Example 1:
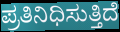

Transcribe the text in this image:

ಪ್ರತಿನಿಧಿಸುತ್ತಿದೆ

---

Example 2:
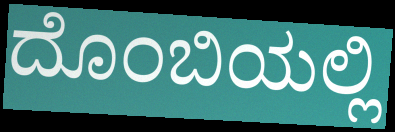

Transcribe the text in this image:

ದೊಂಬಿಯಲ್ಲಿ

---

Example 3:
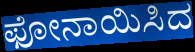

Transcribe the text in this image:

ಫೋನಾಯಿಸಿದ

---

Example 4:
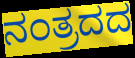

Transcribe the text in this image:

ನಂತ್ರದದ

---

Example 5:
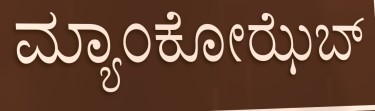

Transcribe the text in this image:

ಮ್ಯಾಂಕೋಝೆಬ್